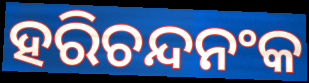
ହରିଚନ୍ଦନଂକ